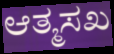
ಆತ್ಮಸಖ